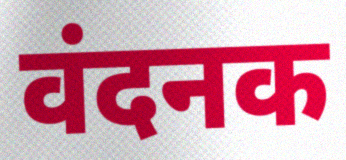
वंदनक